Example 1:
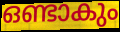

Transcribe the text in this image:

ഒണ്ടാകും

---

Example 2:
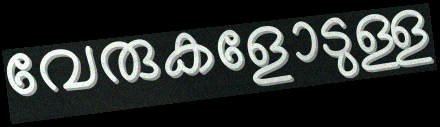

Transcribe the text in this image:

വേരുകളോടുള്ള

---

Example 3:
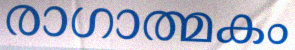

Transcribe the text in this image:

രാഗാത്മകം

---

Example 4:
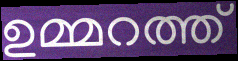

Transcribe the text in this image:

ഉമ്മറത്ത്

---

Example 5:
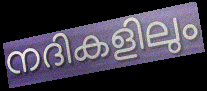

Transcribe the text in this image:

നദികളിലും